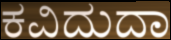
ಕವಿದುದಾ